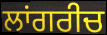
ਲਾਂਗਰੀਚ